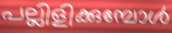
പല്ലിളിക്കുമ്പോൾ